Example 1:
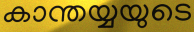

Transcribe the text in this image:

കാന്തയ്യയുടെ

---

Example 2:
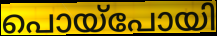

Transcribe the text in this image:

പൊയ്പോയി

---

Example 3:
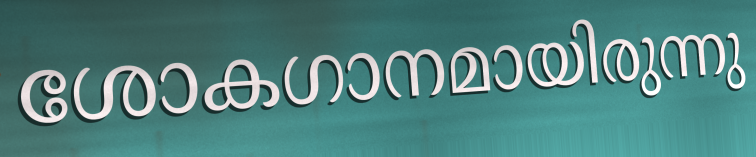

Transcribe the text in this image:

ശോകഗാനമായിരുന്നു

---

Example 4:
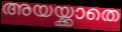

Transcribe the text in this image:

അയയ്ക്കാതെ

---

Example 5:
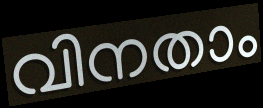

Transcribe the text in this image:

വിനതാം